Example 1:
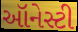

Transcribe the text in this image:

ઑનેસ્ટી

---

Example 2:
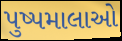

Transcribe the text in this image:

પુષ્પમાલાઓ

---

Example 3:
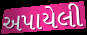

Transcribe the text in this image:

અપાયેલી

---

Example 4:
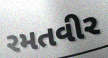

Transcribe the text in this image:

રમતવીર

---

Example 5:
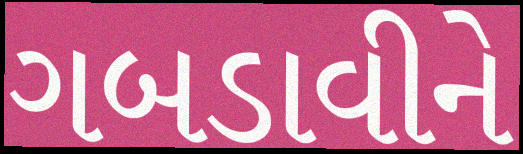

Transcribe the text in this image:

ગબડાવીને